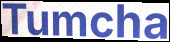
Tumcha